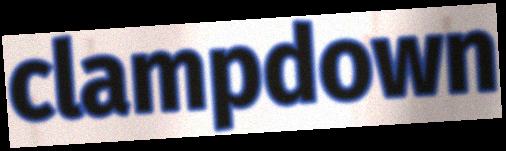
clampdown